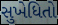
સુખેધિતો